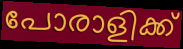
പോരാളിക്ക്